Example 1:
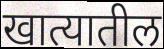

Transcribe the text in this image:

खात्यातील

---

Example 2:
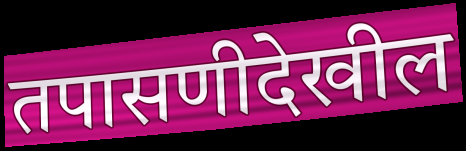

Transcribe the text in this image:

तपासणीदेखील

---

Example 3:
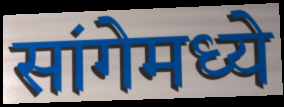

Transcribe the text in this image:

सांगेमध्ये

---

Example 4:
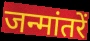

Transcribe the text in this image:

जन्मांतरें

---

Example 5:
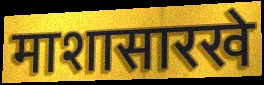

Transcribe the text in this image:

माशासारखे